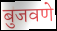
बुजवणे